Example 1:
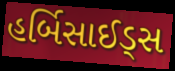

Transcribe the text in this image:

હર્બિસાઈડ્સ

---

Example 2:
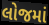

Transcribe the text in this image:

લોજમાં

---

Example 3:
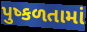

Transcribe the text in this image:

પુષ્કળતામાં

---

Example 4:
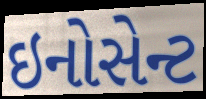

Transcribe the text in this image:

ઇનોસેન્ટ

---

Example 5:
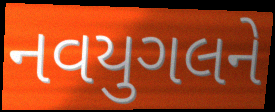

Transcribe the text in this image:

નવયુગલને